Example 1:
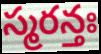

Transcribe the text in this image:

స్మరన్తః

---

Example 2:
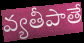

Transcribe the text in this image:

వ్యతీపాతే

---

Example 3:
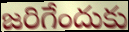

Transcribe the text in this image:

జరిగేందుకు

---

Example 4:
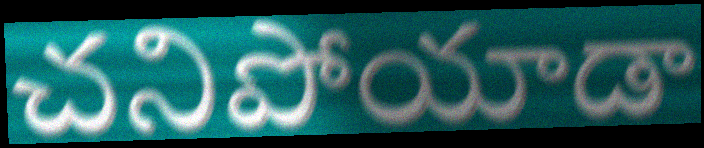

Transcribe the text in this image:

చనిపోయాడా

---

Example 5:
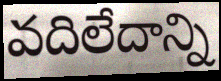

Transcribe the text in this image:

వదిలేదాన్ని